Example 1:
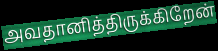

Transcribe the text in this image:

அவதானித்திருக்கிறேன்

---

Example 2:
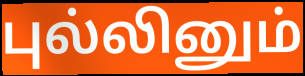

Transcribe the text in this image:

புல்லினும்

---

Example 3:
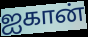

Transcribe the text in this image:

ஐகான்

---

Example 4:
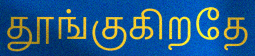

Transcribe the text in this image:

தூங்குகிறதே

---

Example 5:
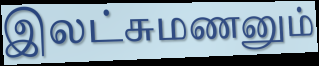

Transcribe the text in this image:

இலட்சுமணனும்